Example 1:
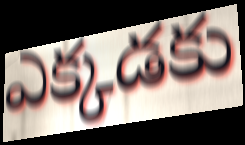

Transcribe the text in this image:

ఎక్కడకు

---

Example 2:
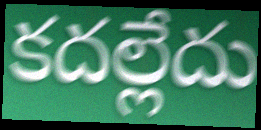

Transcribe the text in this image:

కదల్లేదు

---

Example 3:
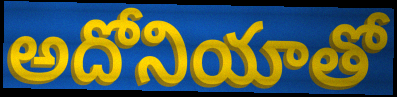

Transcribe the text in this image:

అదోనియాతో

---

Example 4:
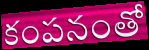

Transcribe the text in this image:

కంపనంతో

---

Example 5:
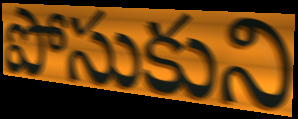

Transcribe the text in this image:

పోసుకుని